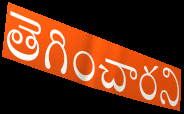
తెగించారని